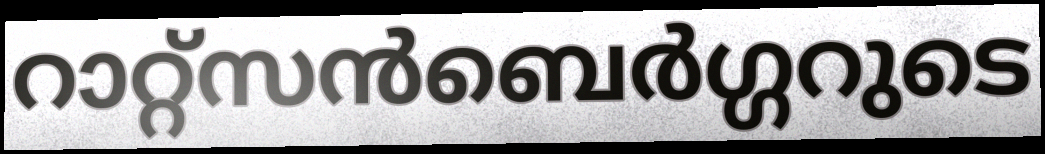
റാറ്റ്സൻബെർഗ്ഗറുടെ